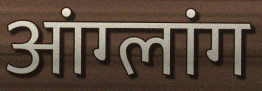
आंग्लांग